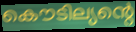
കൌടില്യന്റെ